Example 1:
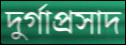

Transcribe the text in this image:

দুৰ্গাপ্ৰসাদ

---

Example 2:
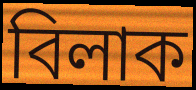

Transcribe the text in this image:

বিলাক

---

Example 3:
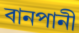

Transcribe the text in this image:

বানপানী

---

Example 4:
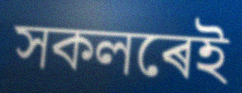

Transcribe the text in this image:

সকলৰেই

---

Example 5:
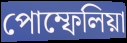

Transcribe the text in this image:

পোম্ফেলিয়া